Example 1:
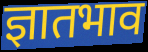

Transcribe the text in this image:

ज्ञातभाव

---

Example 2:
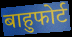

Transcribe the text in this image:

बाहुफोर्ट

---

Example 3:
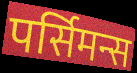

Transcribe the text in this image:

पर्सिमन्स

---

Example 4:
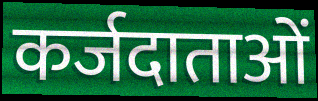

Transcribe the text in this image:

कर्जदाताओं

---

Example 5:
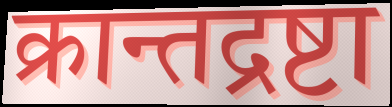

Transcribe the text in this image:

क्रान्तद्रष्टा